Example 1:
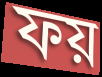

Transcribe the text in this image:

ফয়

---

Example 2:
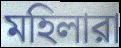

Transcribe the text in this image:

মহিলারা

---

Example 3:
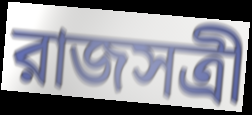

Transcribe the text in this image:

রাজসত্রী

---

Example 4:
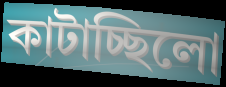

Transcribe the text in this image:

কাটাচ্ছিলো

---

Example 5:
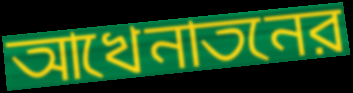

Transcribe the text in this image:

আখেনাতনের